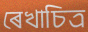
ৰেখাচিত্ৰ